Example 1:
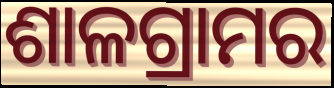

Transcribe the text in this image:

ଶାଳଗ୍ରାମର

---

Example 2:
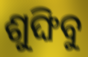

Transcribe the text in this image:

ଶୁଙ୍ଘିବୁ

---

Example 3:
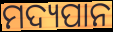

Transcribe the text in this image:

ମଦ୍ୟପାନ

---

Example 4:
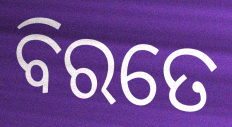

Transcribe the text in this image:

ବିରତେ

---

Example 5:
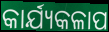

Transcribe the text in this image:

କାର୍ଯ୍ୟକଳାପ